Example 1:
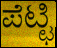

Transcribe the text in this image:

ಪೆಟ್ಟಿ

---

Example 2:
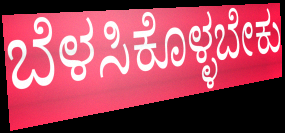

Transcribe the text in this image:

ಬೆಳಸಿಕೊಳ್ಳಬೇಕು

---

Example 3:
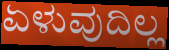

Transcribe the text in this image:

ಏಳುವುದಿಲ್ಲ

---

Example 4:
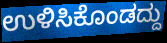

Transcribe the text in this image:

ಉಳಿಸಿಕೊಂಡದ್ದು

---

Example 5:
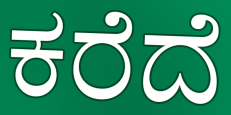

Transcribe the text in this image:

ಕರೆದೆ